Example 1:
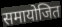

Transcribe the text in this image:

समायोजित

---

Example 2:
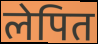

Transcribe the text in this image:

लेपित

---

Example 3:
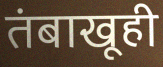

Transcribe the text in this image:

तंबाखूही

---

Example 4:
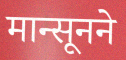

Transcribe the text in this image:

मान्सूनने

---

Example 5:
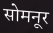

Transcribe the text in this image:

सोमनूर